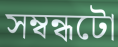
সম্বন্ধটো